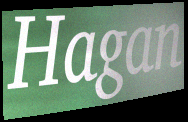
Hagan